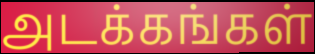
அடக்கங்கள்